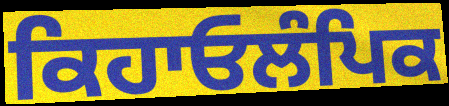
ਕਿਹਾਓਲੰਪਿਕ